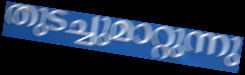
തുടച്ചുമാറ്റുന്നു